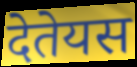
देतेयस